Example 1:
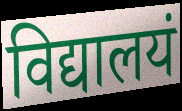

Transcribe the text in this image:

विद्यालयं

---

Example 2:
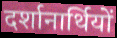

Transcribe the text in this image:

दर्शानार्थियों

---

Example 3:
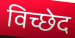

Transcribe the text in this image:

विच्छेद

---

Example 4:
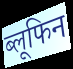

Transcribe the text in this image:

ब्लूफिन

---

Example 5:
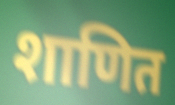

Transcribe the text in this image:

शाणित